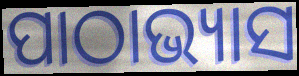
ପାଠାଭ୍ୟାସ